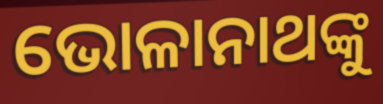
ଭୋଳାନାଥଙ୍କୁ